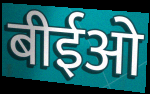
बीईओ